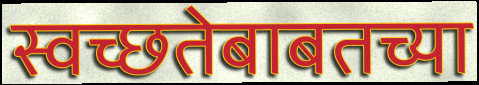
स्वच्छतेबाबतच्या